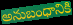
అనుబంధానికి